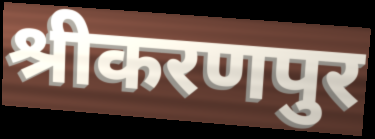
श्रीकरणपुर